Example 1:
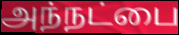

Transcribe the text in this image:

அந்நட்பை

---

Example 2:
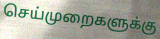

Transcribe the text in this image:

செய்முறைகளுக்கு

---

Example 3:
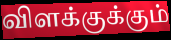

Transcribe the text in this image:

விளக்குக்கும்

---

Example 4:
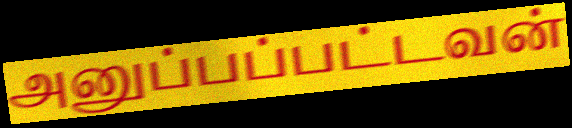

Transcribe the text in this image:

அனுப்பப்பட்டவன்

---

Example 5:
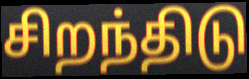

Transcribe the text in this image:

சிறந்திடு